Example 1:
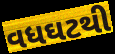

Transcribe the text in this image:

વધઘટથી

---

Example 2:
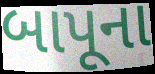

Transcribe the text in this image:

બાપૂના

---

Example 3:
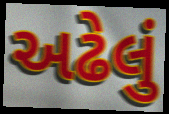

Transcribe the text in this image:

અઢેલું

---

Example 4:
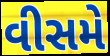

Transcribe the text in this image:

વીસમે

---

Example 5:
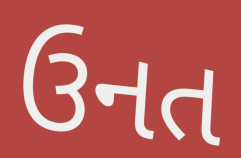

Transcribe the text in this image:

ઉનત